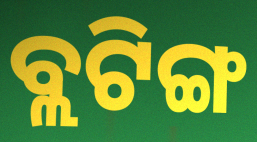
ବ୍ଲଟିଙ୍ଗ